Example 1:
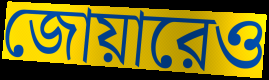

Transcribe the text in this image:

জোয়ারেও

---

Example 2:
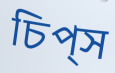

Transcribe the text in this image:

চিপ্‌স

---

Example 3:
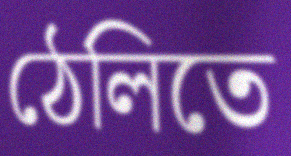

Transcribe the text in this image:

ঠেলিতে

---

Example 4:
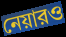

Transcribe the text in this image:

নেয়ারও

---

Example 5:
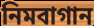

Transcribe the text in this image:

নিমবাগান